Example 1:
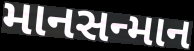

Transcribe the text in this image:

માનસન્માન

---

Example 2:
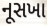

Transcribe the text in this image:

નૂસખા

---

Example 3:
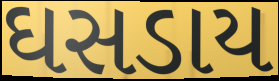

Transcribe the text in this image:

ઘસડાય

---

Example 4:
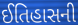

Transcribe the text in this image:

ઈતિહાસની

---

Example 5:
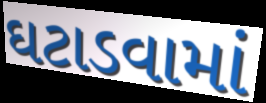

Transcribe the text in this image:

ઘટાડવામાં